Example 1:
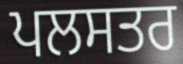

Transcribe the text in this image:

ਪਲਸਤਰ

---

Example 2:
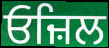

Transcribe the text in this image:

ਓਜ਼ਿਲ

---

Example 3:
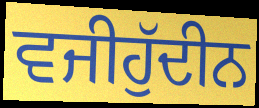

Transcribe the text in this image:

ਵਜੀਹੁੱਦੀਨ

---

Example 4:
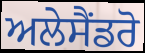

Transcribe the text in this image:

ਅਲੇਸੈਂਡਰੋ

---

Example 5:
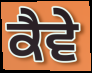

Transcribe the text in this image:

ਕੈਵੇ